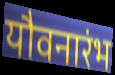
यौवनारंभ